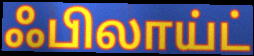
ஃபிலாய்ட்